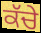
ਕੱਚੇ